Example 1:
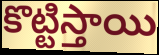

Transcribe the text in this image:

కొట్టిస్తాయి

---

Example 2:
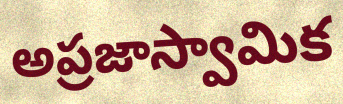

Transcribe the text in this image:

అప్రజాస్వామిక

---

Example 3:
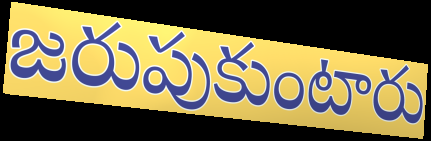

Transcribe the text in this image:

జరుపుకుంటారు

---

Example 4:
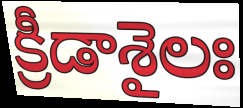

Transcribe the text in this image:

క్రీడాశైలః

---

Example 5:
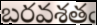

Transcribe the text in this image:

బరవశతఁ